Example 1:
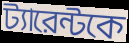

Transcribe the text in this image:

ট্যারেন্টকে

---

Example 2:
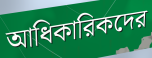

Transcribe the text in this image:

আধিকারিকদের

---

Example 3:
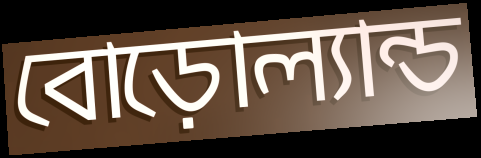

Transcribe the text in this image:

বোড়োল্যান্ড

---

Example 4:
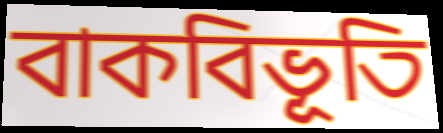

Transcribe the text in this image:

বাকবিভূতি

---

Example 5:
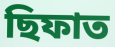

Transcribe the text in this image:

ছিফাত